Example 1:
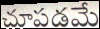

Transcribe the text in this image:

చూపడమే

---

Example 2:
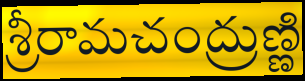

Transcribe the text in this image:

శ్రీరామచంద్రుణ్ణి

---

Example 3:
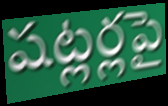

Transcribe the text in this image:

షట్లర్లపై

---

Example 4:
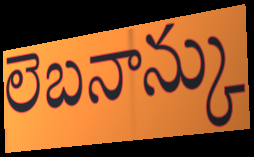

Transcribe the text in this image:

లెబనాన్కు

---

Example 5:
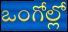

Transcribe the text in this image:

ఒంగోల్లో